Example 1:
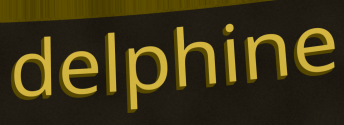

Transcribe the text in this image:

delphine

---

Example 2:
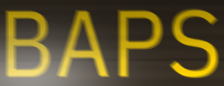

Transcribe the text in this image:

BAPS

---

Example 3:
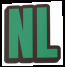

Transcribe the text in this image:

NL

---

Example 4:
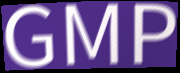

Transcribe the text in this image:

GMP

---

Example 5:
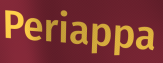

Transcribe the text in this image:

Periappa